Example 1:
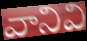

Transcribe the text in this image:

వానివి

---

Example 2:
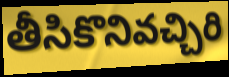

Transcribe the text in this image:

తీసికొనివచ్చిరి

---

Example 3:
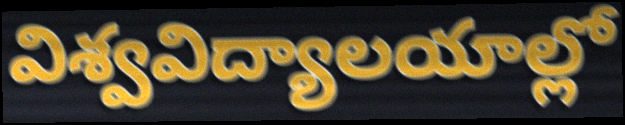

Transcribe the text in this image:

విశ్వవిద్యాలయాల్లో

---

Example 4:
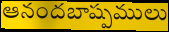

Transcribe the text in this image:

ఆనందబాష్పములు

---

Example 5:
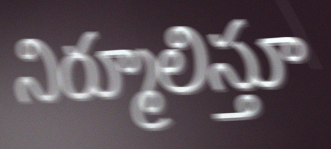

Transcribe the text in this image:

నిర్మూలిస్తూ